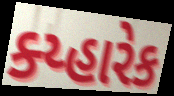
ક્ય્હારેક